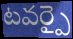
టవర్పై